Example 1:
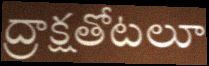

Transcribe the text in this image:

ద్రాక్షతోటలూ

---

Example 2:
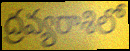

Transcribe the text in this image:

ద్రవ్యరాశిలో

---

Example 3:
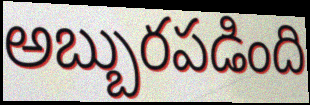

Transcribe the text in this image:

అబ్బురపడింది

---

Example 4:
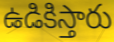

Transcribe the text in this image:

ఉడికిస్తారు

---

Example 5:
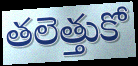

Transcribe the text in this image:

తలెత్తుకో